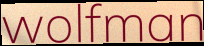
wolfman